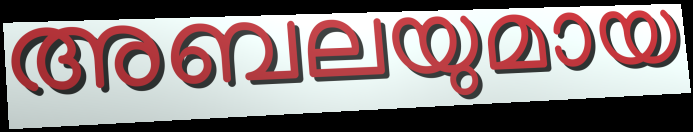
അബലയുമായ